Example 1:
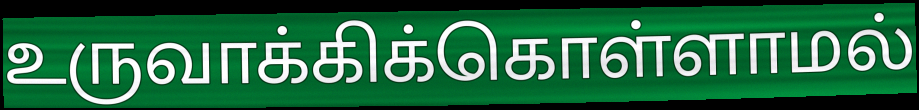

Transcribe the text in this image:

உருவாக்கிக்கொள்ளாமல்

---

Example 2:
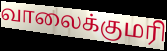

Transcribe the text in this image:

வாலைக்குமரி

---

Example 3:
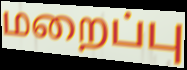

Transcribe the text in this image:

மறைப்பு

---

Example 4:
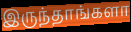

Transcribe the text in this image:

இருந்தாங்களா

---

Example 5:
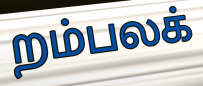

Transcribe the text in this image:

றம்பலக்